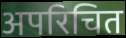
अपरिचित